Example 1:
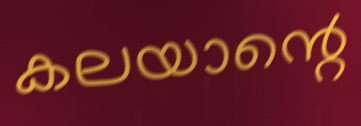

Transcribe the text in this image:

കലയാന്റെ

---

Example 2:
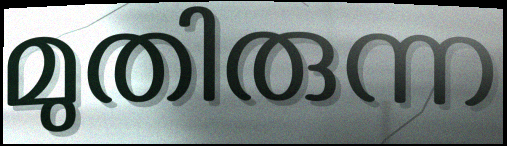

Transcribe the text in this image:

മുതിരുന്ന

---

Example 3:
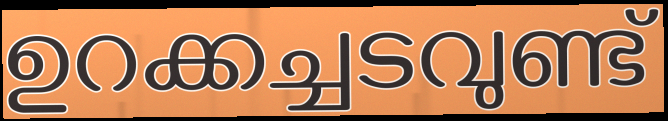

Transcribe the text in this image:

ഉറക്കച്ചടവുണ്ട്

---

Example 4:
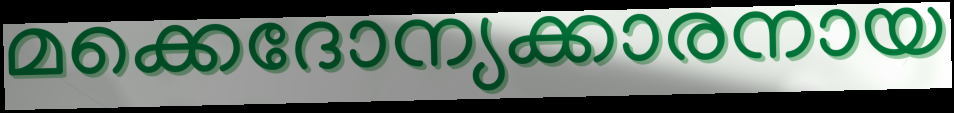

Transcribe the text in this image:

മക്കെദോന്യക്കാരനായ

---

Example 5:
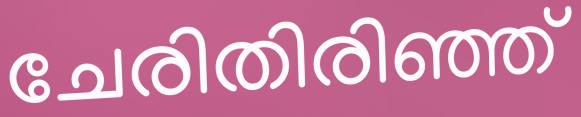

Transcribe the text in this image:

ചേരിതിരിഞ്ഞ്